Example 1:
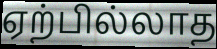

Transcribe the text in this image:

ஏற்பில்லாத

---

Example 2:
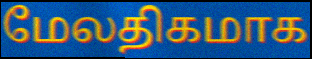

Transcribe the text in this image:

மேலதிகமாக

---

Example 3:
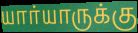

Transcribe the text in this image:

யார்யாருக்கு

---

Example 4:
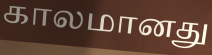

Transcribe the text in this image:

காலமானது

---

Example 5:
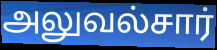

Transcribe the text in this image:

அலுவல்சார்